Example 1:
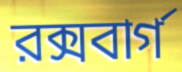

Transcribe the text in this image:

রক্সবার্গ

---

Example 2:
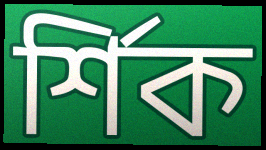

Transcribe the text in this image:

র্শিক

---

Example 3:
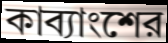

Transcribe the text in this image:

কাব্যাংশের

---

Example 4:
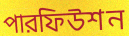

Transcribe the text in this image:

পারফিউশন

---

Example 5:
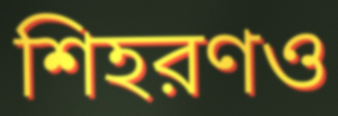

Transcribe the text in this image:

শিহরণও